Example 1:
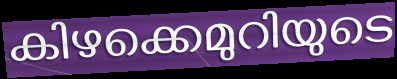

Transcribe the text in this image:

കിഴക്കെമുറിയുടെ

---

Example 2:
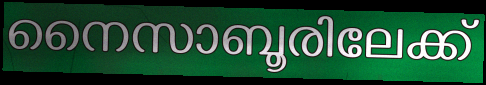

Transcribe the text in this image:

നൈസാബൂരിലേക്ക്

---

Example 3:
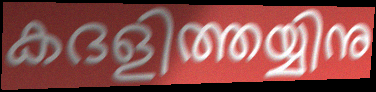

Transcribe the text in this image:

കദളിത്തയ്യിനു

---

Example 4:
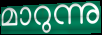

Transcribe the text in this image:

മാറുന്നു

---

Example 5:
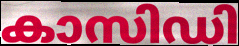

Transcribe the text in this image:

കാസിഡി